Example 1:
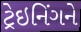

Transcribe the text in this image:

ટ્રેઇનિંગને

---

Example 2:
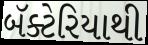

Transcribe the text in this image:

બૅક્ટેરિયાથી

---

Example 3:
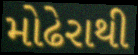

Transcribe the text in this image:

મોઢેરાથી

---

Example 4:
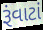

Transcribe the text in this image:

રૂંવાટાં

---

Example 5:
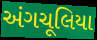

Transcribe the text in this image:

અંગચૂલિયા